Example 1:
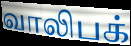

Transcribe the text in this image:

வாலிபக்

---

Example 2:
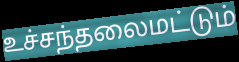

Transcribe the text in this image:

உச்சந்தலைமட்டும்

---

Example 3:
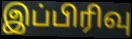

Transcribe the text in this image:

இப்பிரிவு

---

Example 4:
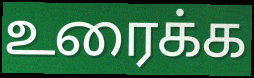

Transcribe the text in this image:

உரைக்க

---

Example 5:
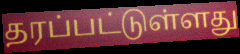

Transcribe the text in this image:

தரப்பட்டுள்ளது